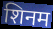
शिनम